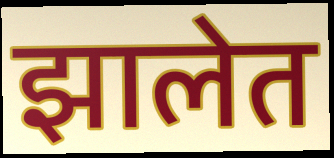
झालेत